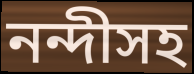
নন্দীসহ